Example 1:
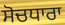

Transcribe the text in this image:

ਸੋਚਧਾਰਾ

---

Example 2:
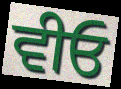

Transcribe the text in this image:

ਵੀਓ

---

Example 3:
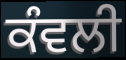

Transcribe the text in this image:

ਕੰਵਲੀ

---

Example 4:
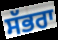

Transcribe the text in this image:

ਸੱਭਰਾ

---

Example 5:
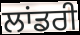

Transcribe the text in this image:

ਲਾਂਡਰੀ